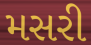
મસરી